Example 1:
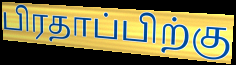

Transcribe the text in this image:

பிரதாப்பிற்கு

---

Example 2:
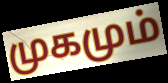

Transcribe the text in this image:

முகமும்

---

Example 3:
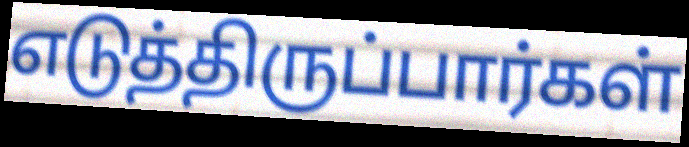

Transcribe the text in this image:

எடுத்திருப்பார்கள்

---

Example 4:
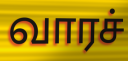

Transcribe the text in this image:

வாரச்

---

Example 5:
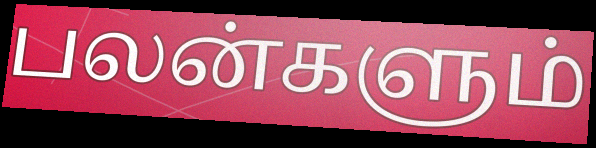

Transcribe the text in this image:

பலன்களும்